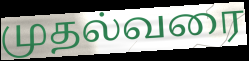
முதல்வரை